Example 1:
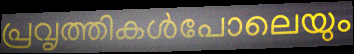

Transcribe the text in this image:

പ്രവൃത്തികൾപോലെയും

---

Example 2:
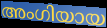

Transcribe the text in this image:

അംഗിയായ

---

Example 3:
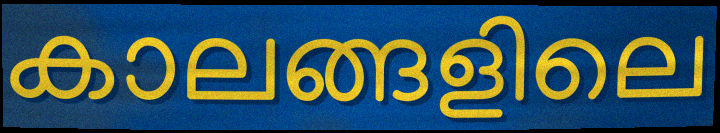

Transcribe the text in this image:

കാലങ്ങളിലെ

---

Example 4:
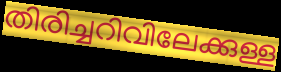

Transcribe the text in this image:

തിരിച്ചറിവിലേക്കുള്ള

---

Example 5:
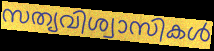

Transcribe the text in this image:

സത്യവിശ്വാസികൾ